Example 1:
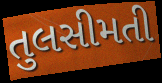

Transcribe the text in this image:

તુલસીમતી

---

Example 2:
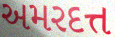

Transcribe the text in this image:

અમરદત્ત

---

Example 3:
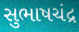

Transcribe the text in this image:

સુભાષચંદ્ર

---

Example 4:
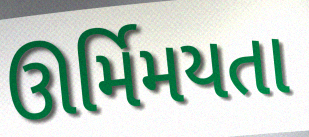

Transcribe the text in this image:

ઊર્મિમયતા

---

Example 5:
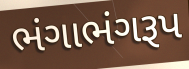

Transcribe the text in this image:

ભંગાભંગરૂપ